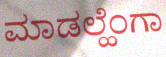
ಮಾಡಲ್ಹೆಂಗಾ